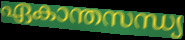
ഏകാന്തസന്ധ്യ